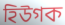
হিউগক